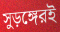
সুড়ঙ্গেরই